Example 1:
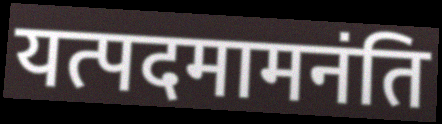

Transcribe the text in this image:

यत्पदमामनंति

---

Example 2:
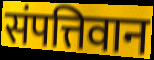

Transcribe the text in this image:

संपत्तिवान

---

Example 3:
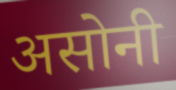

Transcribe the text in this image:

असोनी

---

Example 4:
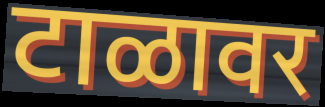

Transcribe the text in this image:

टाळावर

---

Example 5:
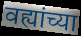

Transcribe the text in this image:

वह्यांच्या